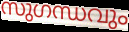
സുഗന്ധവും